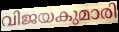
വിജയകുമാരി